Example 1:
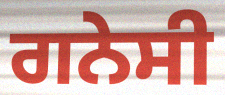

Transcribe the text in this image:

ਗਨੇਸੀ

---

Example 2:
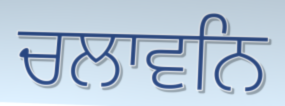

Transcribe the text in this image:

ਚਲਾਵਨਿ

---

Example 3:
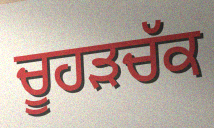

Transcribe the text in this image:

ਚੂਹਡ਼ਚੱਕ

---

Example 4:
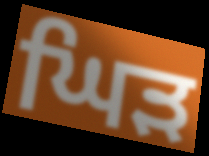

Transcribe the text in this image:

ਘਿੜ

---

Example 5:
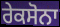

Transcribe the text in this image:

ਰੇਕਸੋਨਾ